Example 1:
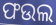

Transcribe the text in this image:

ଫଉଲ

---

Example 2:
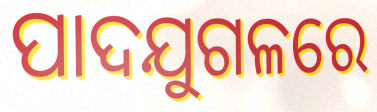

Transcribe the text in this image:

ପାଦଯୁଗଳରେ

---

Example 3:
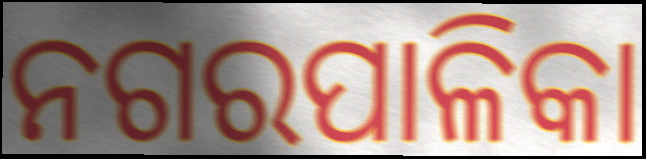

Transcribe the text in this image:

ନଗରପାଳିକା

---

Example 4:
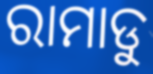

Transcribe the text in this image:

ରାମାଡୁ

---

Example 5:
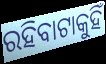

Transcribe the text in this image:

ରହିବାଟାକୁହିଁ